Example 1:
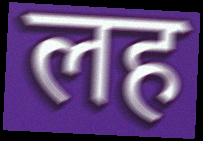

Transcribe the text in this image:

लह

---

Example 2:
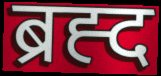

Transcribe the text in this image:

ब्रह्द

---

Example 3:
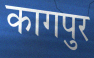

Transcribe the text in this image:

कागपुर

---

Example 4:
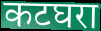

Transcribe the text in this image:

कटघरा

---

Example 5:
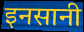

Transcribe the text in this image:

इनसानी